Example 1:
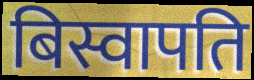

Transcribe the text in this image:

बिस्वापति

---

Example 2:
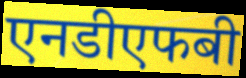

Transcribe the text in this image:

एनडीएफबी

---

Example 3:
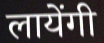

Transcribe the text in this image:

लायेंगी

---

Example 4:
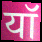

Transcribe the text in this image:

यॉ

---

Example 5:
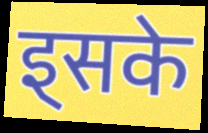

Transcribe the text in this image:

इ्सके